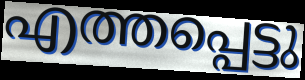
എത്തപ്പെട്ടു